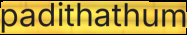
padithathum